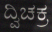
ದ್ವಿಚಕ್ರ